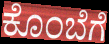
ಕೊಂಬೆಗೆ